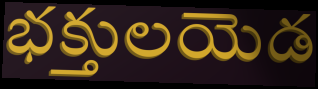
భక్తులయెడ